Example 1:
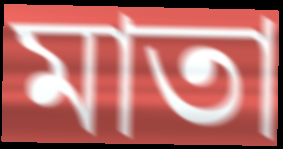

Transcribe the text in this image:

মাতা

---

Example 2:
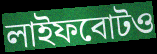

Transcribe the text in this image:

লাইফবোটও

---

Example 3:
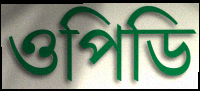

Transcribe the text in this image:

ওপিডি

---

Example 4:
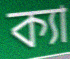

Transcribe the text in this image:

ক্যা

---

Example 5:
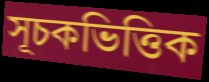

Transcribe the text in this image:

সূচকভিত্তিক